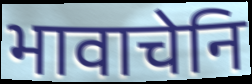
भावाचेनि